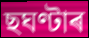
ছঘণ্টাৰ